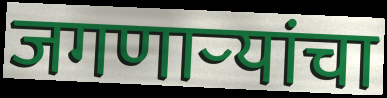
जगणाऱ्यांचा